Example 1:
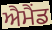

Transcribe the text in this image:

ਐਮੈਂਡ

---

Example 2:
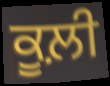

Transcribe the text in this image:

ਕੂਲ਼ੀ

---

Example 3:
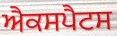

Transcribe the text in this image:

ਐਕਸਪੈਟਸ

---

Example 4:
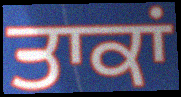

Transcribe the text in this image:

ਤਾਕਾਂ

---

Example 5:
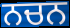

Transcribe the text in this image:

ਨਚਨ